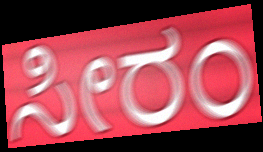
ಸೀರಂ